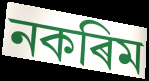
নকৰিম